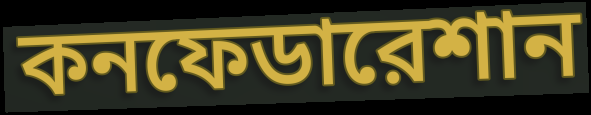
কনফেডারেশান